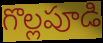
గొల్లపూడి